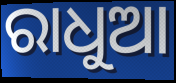
ରାଧୁଆ